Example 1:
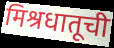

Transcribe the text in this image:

मिश्रधातूची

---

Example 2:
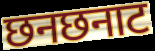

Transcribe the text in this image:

छनछनाट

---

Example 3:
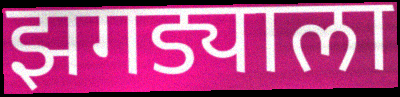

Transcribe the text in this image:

झगड्याला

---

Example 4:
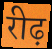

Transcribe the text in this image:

रीढ़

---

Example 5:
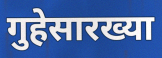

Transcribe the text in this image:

गुहेसारख्या